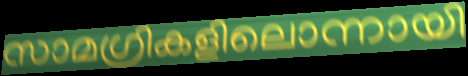
സാമഗ്രികളിലൊന്നായി